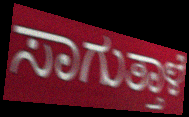
ಸಾಗುತ್ತಾಳೆ